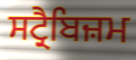
ਸਟ੍ਰੈਬਿਜ਼ਮ